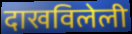
दाखविलेली